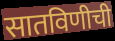
सातविणीची